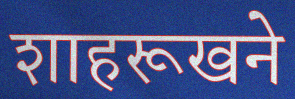
शाहरूखने